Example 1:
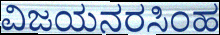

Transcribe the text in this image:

ವಿಜಯನರಸಿಂಹ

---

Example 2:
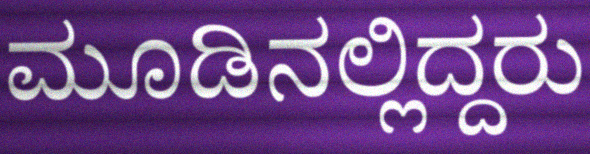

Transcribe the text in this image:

ಮೂಡಿನಲ್ಲಿದ್ದರು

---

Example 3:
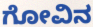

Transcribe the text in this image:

ಗೋವಿನ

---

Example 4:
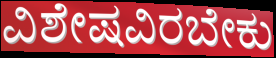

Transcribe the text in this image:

ವಿಶೇಷವಿರಬೇಕು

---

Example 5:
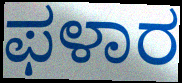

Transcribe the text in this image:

ಫಳಾರ